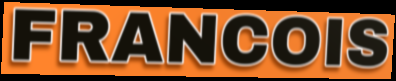
FRANCOIS